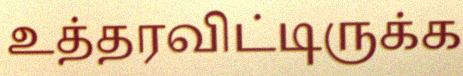
உத்தரவிட்டிருக்க